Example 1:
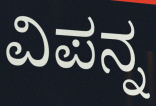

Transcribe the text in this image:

ವಿಪನ್ನ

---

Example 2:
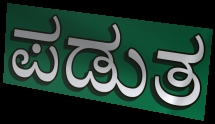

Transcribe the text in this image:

ಪಡುತ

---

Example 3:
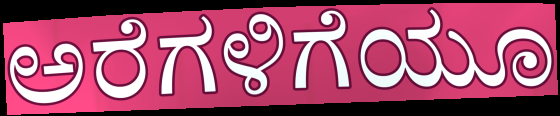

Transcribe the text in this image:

ಅರೆಗಳಿಗೆಯೂ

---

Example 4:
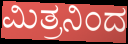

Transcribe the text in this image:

ಮಿತ್ರನಿಂದ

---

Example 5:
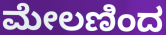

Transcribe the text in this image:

ಮೇಲಣಿಂದ